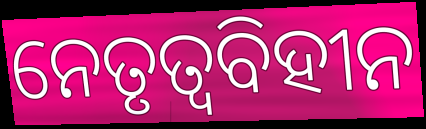
ନେତୃତ୍ୱବିହୀନ